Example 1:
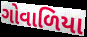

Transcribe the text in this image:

ગોવાળિયા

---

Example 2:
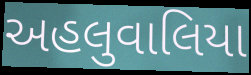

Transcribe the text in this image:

અહલુવાલિયા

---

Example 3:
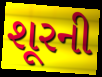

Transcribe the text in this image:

શૂરની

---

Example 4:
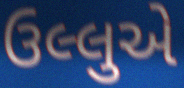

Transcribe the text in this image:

ઉલ્લુએ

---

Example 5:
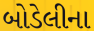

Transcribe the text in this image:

બોડેલીના